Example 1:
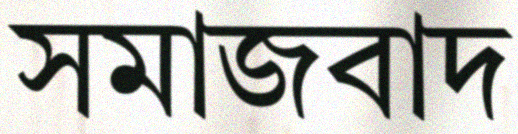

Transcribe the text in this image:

সমাজবাদ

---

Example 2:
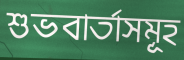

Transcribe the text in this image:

শুভবাৰ্তাসমূহ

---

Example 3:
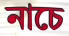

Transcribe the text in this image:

নাচে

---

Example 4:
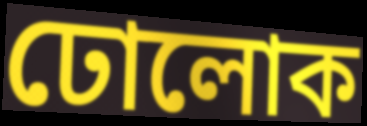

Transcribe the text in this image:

ঢোলোক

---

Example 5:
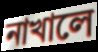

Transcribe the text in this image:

নাখালে